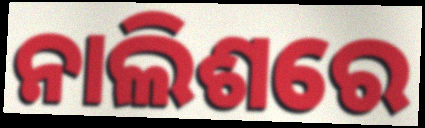
ନାଲିଶରେ